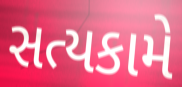
સત્યકામે